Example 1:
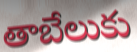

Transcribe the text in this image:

తాబేలుకు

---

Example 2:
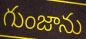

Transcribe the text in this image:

గుంజాను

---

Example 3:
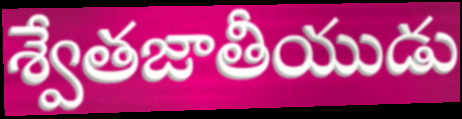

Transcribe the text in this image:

శ్వేతజాతీయుడు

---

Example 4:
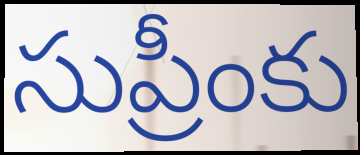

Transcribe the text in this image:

సుప్రీంకు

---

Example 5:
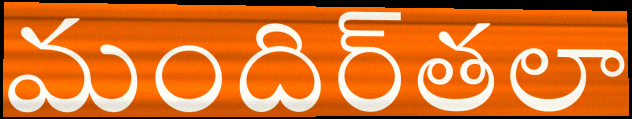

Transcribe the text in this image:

మందిర్‌తలా